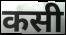
कसी